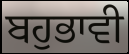
ਬਹੁਭਾਵੀ